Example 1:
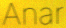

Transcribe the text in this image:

Anar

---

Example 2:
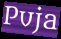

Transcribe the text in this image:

Puja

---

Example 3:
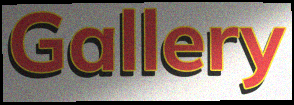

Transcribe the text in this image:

Gallery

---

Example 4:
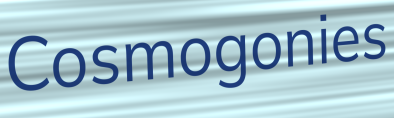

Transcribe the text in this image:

Cosmogonies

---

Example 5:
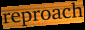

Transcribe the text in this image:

reproach